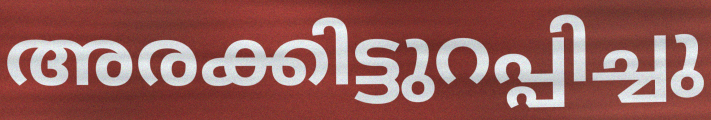
അരക്കിട്ടുറപ്പിച്ചു